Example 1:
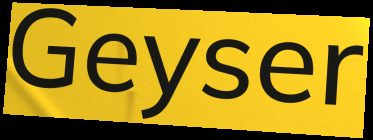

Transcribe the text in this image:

Geyser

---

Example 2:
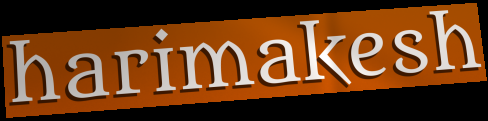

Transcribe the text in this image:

harimakesh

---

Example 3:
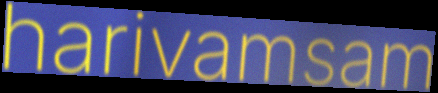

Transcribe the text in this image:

harivamsam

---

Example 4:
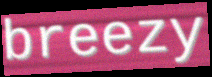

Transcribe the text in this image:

breezy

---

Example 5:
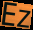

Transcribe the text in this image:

Ez